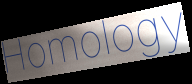
Homology